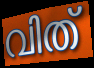
വിത്